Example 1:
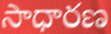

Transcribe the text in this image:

సాధారణ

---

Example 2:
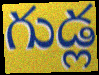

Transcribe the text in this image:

గుడ్ల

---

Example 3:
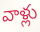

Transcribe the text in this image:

వాళ్లు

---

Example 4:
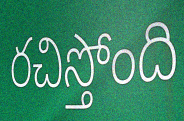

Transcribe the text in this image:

రచిస్తోంది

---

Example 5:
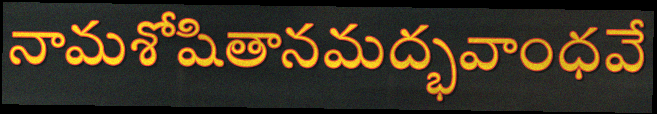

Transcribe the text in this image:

నామశోషితానమద్భవాంధవే